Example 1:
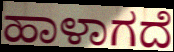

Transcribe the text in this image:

ಹಾಳಾಗದೆ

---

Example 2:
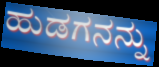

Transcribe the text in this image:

ಹುಡಗನನ್ನು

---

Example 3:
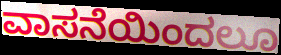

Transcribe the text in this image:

ವಾಸನೆಯಿಂದಲೂ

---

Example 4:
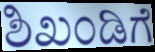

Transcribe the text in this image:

ಶಿಖಂಡಿಗೆ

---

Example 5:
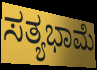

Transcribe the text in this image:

ಸತ್ಯಭಾಮೆ